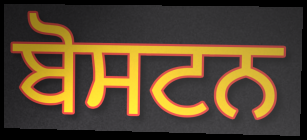
ਬੋਸਟਨ